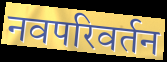
नवपरिवर्तन